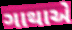
ગાથાએ